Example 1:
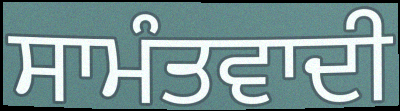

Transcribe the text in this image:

ਸਾਮੰਤਵਾਦੀ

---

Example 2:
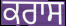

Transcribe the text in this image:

ਕਰਾਸ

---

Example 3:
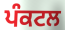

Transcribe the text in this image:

ਪੰਕਟਲ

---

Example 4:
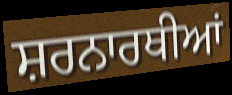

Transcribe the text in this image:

ਸ਼ਰਨਾਰਥੀਆਂ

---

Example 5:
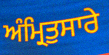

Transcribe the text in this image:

ਅੰਮ੍ਰਿਤੁਸਾਰੇ